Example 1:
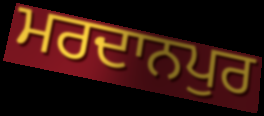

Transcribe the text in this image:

ਮਰਦਾਨਪੁਰ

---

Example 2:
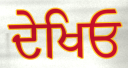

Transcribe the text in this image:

ਦੇਖਿਓ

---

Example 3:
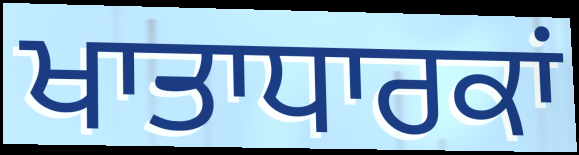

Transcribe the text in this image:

ਖਾਤਾਧਾਰਕਾਂ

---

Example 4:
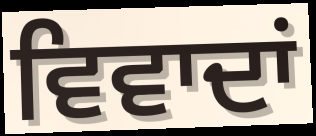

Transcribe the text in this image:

ਵਿਵਾਦਾਂ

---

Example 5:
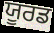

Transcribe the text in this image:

ਯੂਰਡ